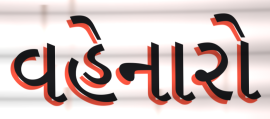
વહેનારો